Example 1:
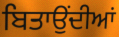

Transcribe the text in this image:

ਬਿਤਾਉਂਦੀਆਂ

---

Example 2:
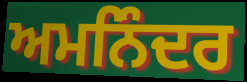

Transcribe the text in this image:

ਅਮਨਿੰਦਰ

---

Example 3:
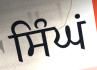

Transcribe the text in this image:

ਸਿੰਘਂ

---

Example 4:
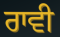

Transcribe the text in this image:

ਰਾਵੀ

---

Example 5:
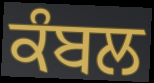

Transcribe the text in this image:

ਕੰਬਲ